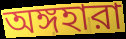
অঙ্গহারা